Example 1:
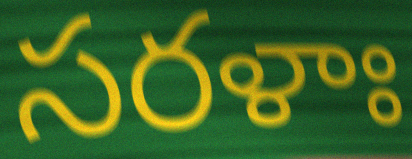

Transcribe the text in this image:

సరళాః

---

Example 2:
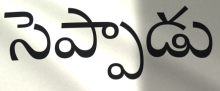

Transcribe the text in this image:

సెప్పాడు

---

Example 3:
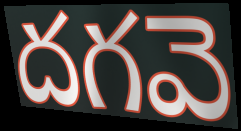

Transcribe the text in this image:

దగవె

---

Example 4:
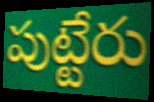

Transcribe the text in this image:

పుట్టేరు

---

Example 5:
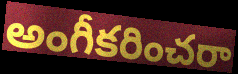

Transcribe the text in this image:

అంగీకరించరా